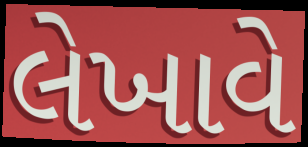
લેખાવે